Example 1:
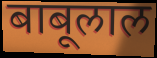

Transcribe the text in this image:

बाबूलाल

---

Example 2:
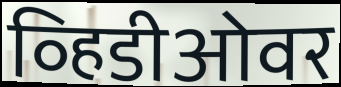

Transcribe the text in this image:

व्हिडीओवर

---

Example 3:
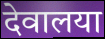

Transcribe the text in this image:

देवालया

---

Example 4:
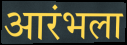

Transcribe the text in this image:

आरंभला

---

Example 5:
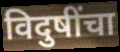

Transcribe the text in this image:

विदुषींचा